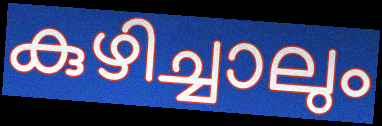
കുഴിച്ചാലും